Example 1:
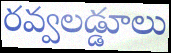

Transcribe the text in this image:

రవ్వలడ్డూలు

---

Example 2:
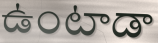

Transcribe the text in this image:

ఉంటాడా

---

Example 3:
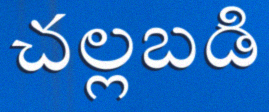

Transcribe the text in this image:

చల్లబడి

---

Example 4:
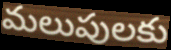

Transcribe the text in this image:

మలుపులకు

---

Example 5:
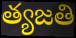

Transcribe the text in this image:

త్యజతి